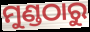
ମୁଣ୍ଡଠାରୁ